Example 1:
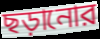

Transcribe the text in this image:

ছড়ানোর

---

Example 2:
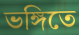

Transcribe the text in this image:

ভঙ্গিতে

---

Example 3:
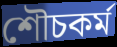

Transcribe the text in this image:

শৌচকর্ম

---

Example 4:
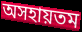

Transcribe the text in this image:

অসহায়তম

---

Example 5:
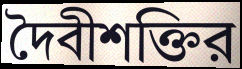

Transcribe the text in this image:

দৈবীশক্তির